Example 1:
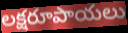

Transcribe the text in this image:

లక్షరూపాయలు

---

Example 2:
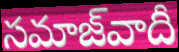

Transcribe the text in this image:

సమాజ్‌వాదీ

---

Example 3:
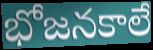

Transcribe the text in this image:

భోజనకాలే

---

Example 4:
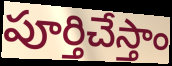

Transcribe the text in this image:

పూర్తిచేస్తాం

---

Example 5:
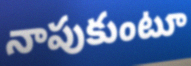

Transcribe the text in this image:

నాపుకుంటూ